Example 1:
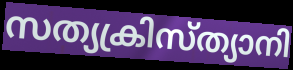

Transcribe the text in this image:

സത്യക്രിസ്ത്യാനി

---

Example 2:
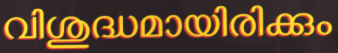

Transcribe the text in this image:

വിശുദ്ധമായിരിക്കും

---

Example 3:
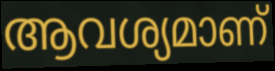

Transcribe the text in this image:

ആവശ്യമാണ്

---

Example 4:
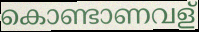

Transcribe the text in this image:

കൊണ്ടാണവള്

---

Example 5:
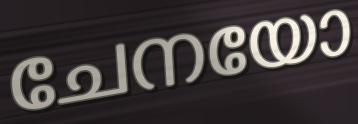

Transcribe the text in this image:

ചേനയോ